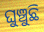
ଘୁଞ୍ଚୁଛି